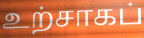
உற்சாகப்